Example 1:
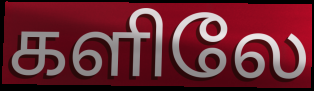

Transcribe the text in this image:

களிலே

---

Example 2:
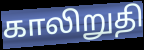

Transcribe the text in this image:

காலிறுதி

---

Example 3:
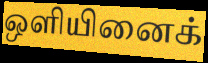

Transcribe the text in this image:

ஒளியினைக்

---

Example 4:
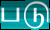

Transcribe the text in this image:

படு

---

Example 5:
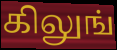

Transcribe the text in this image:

கிலுங்